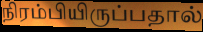
நிரம்பியிருப்பதால்